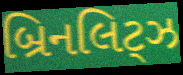
બ્રિનલિટ્ઝ